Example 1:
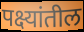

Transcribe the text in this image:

पक्ष्यांतील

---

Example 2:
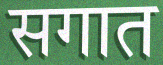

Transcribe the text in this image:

सगात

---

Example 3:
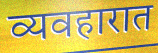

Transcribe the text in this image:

व्यवहारात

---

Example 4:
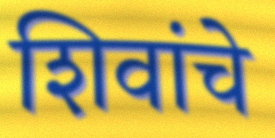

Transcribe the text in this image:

शिवांचे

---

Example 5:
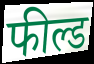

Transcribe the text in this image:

फील्ड